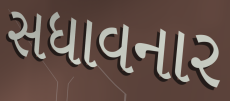
સધાવનાર